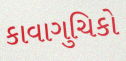
કાવાગુચિકો